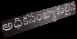
అధికసంఖ్యాకులైన